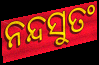
ନନ୍ଦସୁତଂ